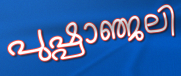
പുഷ്പാഞ്ജലി